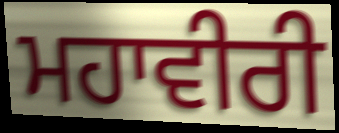
ਮਹਾਵੀਰੀ